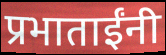
प्रभाताईंनी